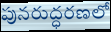
పునరుద్ధరణలో